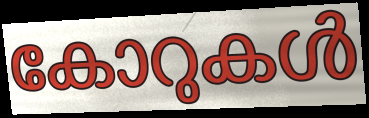
കോറുകൾ